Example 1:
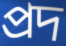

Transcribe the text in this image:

প্রদ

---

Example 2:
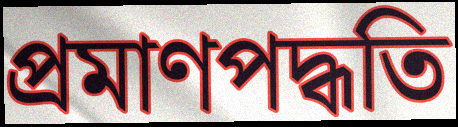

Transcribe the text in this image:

প্রমাণপদ্ধতি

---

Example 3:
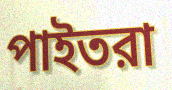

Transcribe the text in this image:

পাইতরা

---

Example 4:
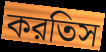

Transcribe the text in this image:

করতিস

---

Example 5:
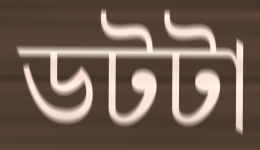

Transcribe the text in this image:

ডটটা